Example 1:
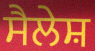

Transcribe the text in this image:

ਸੈਲੇਸ਼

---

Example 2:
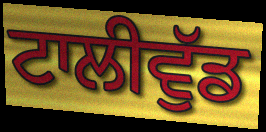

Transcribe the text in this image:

ਟਾਲੀਵੁੱਡ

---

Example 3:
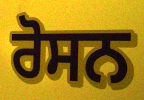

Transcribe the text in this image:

ਰੋਸਨ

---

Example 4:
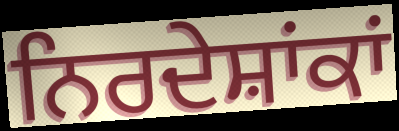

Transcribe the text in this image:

ਨਿਰਦੇਸ਼ਾਂਕਾਂ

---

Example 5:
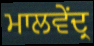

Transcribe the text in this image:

ਮਾਲਵੇਂਦ੍ਰ